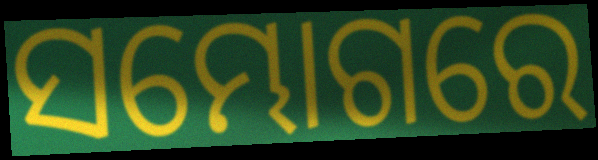
ସମ୍ଭୋଗରେ